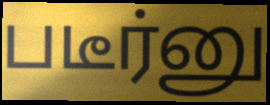
படீர்னு